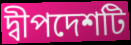
দ্বীপদেশটি